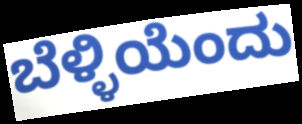
ಬೆಳ್ಳಿಯೆಂದು